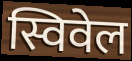
स्विवेल